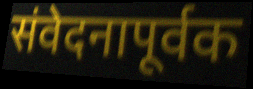
संवेदनापूर्वक